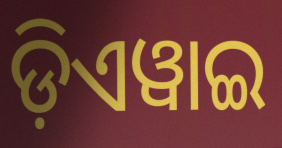
ଡ଼ିଏୱାଇ